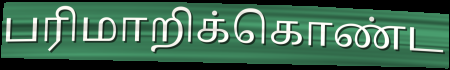
பரிமாறிக்கொண்ட